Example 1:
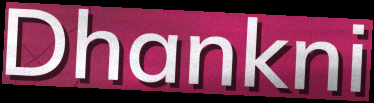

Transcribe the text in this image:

Dhankni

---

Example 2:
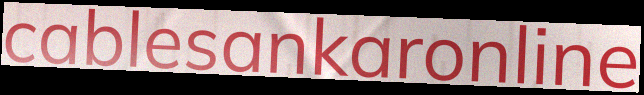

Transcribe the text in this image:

cablesankaronline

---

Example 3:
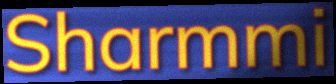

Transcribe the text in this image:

Sharmmi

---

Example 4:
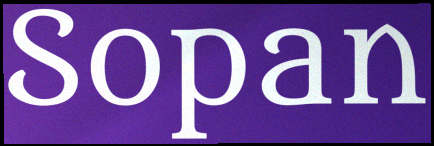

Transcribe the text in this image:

Sopan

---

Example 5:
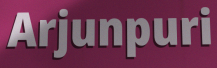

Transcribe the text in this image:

Arjunpuri